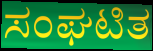
ಸಂಘಟಿತ